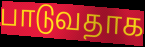
பாடுவதாக